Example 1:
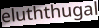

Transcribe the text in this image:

eluththugal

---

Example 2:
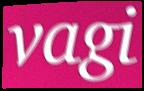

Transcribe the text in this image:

vagi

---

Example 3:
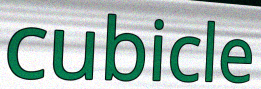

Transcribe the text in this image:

cubicle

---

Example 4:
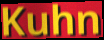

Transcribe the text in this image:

Kuhn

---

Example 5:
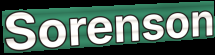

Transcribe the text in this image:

Sorenson